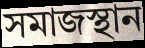
সমাজস্থান